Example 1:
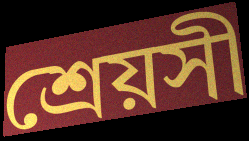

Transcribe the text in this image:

শ্রেয়সী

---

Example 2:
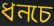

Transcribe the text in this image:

ধনচে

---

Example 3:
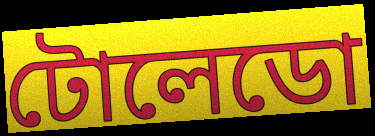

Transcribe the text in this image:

টোলেডো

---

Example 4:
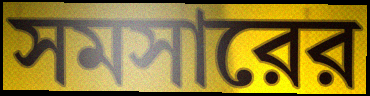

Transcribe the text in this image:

সমসারের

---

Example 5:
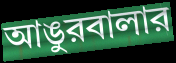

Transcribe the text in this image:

আঙুরবালার